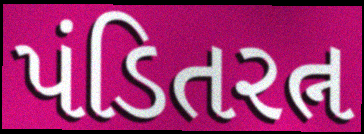
પંડિતરત્ન